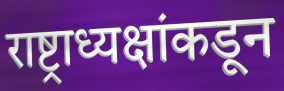
राष्ट्राध्यक्षांकडून